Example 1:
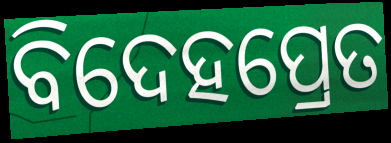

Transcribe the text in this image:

ବିଦେହପ୍ରେତ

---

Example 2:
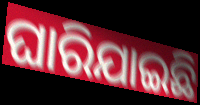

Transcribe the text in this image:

ଘାରିଯାଇଛି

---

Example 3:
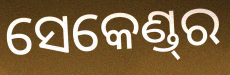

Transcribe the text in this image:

ସେକେଣ୍ଡ୍‌ର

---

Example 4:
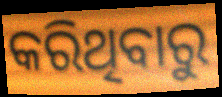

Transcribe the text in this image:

କରିଥିବାରୁ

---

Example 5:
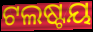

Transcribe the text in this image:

ଟଲଷ୍ଟୟ